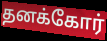
தனக்கோர்